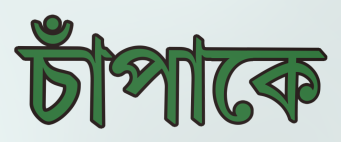
চাঁপাকে